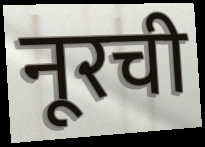
नूरची